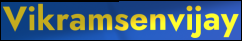
Vikramsenvijay